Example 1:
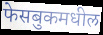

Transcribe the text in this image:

फेसबुकमधील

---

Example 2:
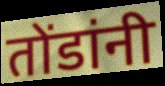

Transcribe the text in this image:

तोंडांनी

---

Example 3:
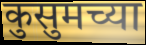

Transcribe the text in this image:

कुसुमच्या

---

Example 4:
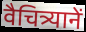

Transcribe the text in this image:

वैचित्र्यानें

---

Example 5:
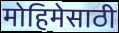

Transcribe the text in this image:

मोहिमेसाठी